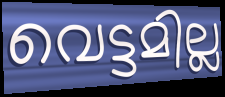
വെട്ടമില്ല